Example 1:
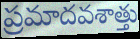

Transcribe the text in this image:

ప్రమాదవశాత్తు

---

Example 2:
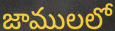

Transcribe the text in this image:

జాములలో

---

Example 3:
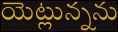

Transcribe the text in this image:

యెట్లున్నను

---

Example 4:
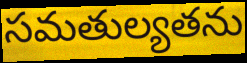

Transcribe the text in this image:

సమతుల్యతను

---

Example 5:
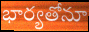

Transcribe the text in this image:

భార్యతోనూ